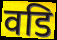
वडि